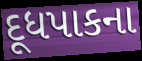
દૂધપાકના